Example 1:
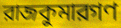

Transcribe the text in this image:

রাজকুমারগণ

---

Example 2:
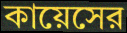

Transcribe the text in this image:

কায়েসের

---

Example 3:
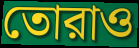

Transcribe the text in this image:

তোরাও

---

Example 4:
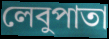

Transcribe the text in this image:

লেবুপাতা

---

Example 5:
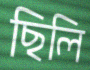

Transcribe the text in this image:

ছিলি